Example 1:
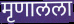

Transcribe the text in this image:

मृणालला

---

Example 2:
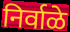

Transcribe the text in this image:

निर्वाळे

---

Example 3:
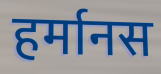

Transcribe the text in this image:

हर्मानस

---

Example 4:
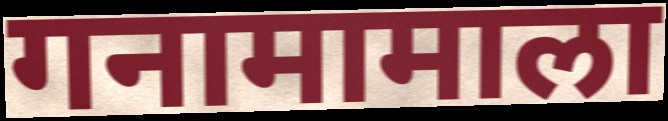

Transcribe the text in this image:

गनामामाला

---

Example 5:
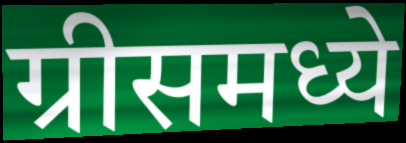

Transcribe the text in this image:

ग्रीसमध्ये